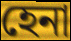
হেনা